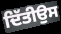
ਦਿੱਤੀਉਸ